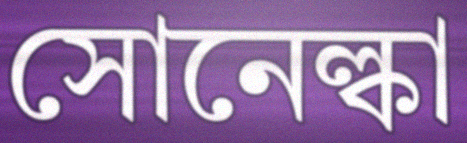
সোনেল্কা